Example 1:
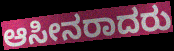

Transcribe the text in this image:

ಆಸೀನರಾದರು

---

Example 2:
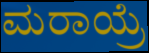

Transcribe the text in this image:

ಮರಾಯ್ರೆ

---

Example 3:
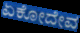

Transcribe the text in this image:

ಏಕೋದೇವ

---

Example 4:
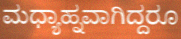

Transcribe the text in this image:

ಮಧ್ಯಾಹ್ನವಾಗಿದ್ದರೂ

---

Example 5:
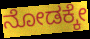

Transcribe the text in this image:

ನೋಡಕ್ಕೇ